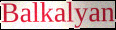
Balkalyan